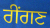
ਰੀਂਗਣ